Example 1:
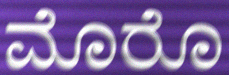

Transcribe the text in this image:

ಮೊರೊ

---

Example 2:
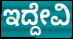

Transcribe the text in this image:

ಇದ್ದೇವಿ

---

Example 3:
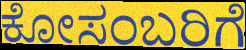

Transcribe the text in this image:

ಕೋಸಂಬರಿಗೆ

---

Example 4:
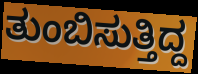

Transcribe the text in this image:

ತುಂಬಿಸುತ್ತಿದ್ದ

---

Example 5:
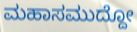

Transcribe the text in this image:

ಮಹಾಸಮುದ್ದೋ